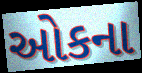
ઓકના